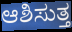
ಆಶಿಸುತ್ತ